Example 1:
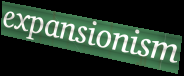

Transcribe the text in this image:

expansionism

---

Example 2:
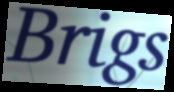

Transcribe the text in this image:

Brigs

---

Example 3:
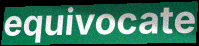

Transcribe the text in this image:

equivocate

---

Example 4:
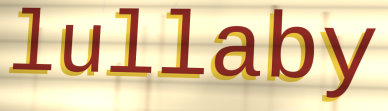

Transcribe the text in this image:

lullaby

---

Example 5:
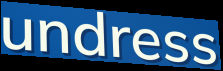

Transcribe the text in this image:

undress